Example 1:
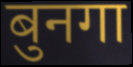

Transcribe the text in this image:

बुनगा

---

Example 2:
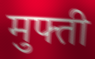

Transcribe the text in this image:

मुफ्ती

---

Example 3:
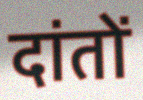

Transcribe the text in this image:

दांतों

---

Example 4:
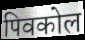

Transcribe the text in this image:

पिवकोल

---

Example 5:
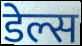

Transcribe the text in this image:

डेल्स